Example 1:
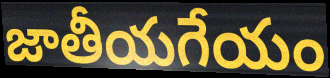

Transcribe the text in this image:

జాతీయగేయం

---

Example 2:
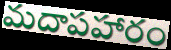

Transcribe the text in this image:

మదాపహారం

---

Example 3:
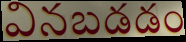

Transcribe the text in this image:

వినబడడం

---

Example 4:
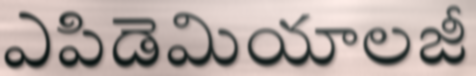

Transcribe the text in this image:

ఎపిడెమియాలజీ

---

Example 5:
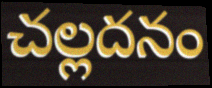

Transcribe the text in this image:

చల్లదనం